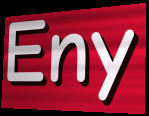
Eny